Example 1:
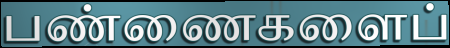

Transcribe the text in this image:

பண்ணைகளைப்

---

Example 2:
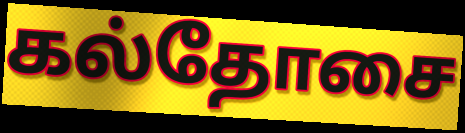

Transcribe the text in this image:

கல்தோசை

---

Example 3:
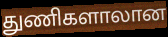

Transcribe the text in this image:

துணிகளாலான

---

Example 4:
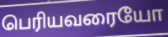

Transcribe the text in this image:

பெரியவரையோ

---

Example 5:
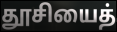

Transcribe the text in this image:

தூசியைத்